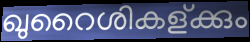
ഖുറൈശികള്ക്കും